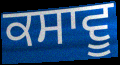
ਕਸਾਵੂ